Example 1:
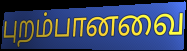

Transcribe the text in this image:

புறம்பானவை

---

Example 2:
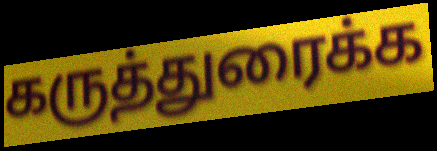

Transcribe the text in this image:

கருத்துரைக்க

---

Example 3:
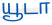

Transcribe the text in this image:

யூடா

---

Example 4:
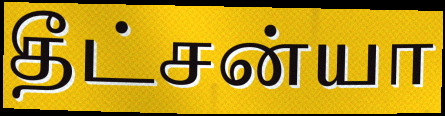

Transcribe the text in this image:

தீட்சன்யா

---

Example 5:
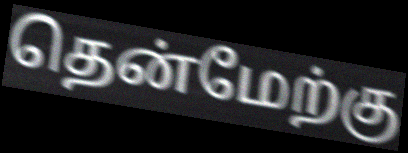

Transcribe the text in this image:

தென்மேற்கு